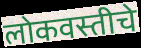
लोकवस्तीचे